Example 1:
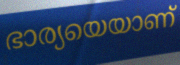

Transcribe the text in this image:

ഭാര്യയെയാണ്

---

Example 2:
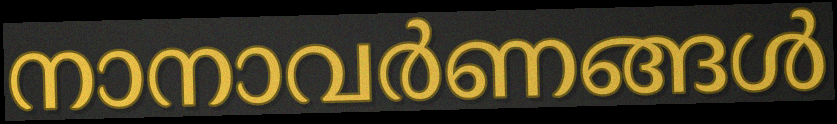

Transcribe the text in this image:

നാനാവർണങ്ങൾ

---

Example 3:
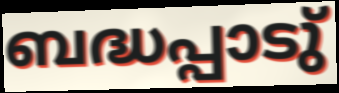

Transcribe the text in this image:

ബദ്ധപ്പാടു്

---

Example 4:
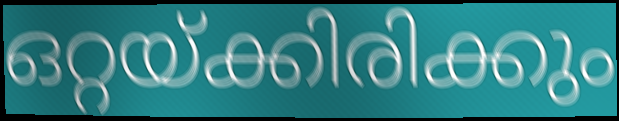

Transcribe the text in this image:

ഒറ്റയ്ക്കിരിക്കും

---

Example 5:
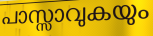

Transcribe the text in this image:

പാസ്സാവുകയും